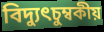
বিদ্যুৎচুম্বকীয়